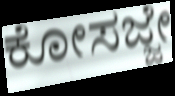
ಕೋಸಜ್ಜೇ